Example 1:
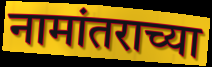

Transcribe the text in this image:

नामांतराच्या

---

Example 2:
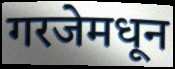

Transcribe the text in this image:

गरजेमधून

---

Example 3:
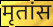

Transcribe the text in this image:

मृतांस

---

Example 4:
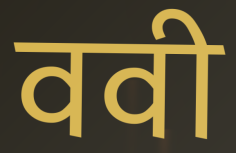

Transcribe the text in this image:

ववी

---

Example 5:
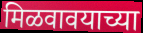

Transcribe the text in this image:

मिळवावयाच्या